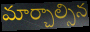
మార్చాల్సిన